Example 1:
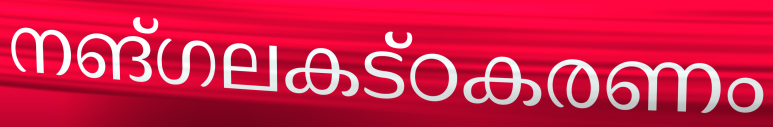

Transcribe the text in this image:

നങ്ഗലകട്ഠകരണം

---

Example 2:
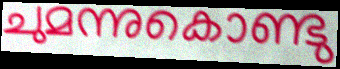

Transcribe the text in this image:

ചുമന്നുകൊണ്ടു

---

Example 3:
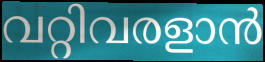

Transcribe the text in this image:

വറ്റിവരളാൻ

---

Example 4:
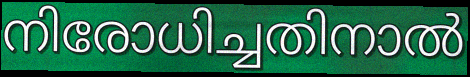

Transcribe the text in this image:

നിരോധിച്ചതിനാൽ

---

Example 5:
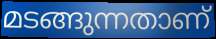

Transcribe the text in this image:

മടങ്ങുന്നതാണ്